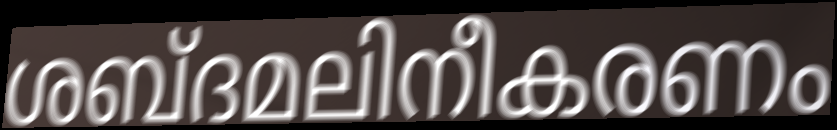
ശബ്ദമലിനീകരണം